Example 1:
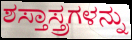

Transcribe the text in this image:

ಶಸ್ತಾಸ್ತ್ರಗಳನ್ನು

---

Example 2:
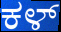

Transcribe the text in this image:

ಕಳ್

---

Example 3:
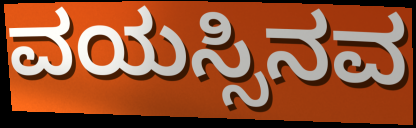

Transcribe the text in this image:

ವಯಸ್ಸಿನವ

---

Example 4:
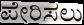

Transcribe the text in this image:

ಪೇರಿಸಲು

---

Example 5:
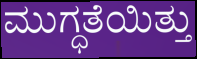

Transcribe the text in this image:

ಮುಗ್ಧತೆಯಿತ್ತು